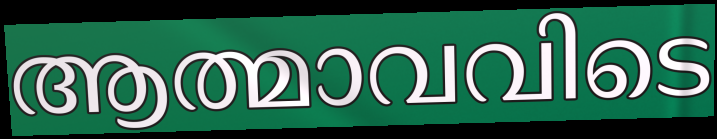
ആത്മാവവിടെ